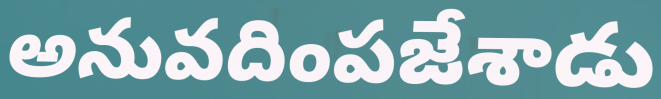
అనువదింపజేశాడు